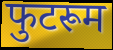
फुटरूम